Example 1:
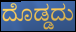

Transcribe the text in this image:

ದೊಡ್ಡದು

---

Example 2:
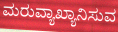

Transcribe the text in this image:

ಮರುವ್ಯಾಖ್ಯಾನಿಸುವ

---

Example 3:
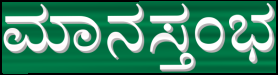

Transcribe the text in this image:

ಮಾನಸ್ತಂಭ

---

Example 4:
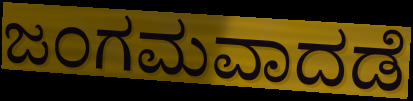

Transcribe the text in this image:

ಜಂಗಮವಾದಡೆ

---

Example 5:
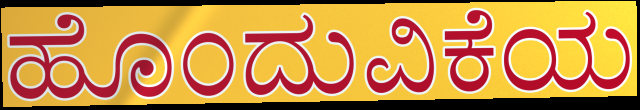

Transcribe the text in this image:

ಹೊಂದುವಿಕೆಯ